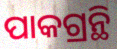
ପାକଗ୍ରନ୍ଥି